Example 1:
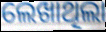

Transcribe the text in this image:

ଲେଖାଥିଲା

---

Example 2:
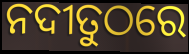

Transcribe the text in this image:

ନଦୀତୁଠରେ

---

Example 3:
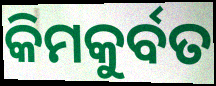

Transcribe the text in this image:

କିମକୁର୍ବତ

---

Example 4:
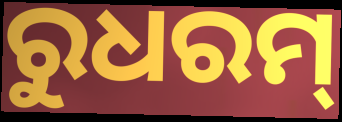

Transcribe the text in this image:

ରୁଧରମ୍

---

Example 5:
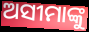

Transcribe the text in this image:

ଅସୀମାଙ୍କୁ